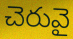
చెరువై